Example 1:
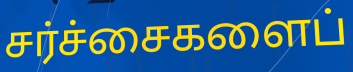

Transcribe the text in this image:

சர்ச்சைகளைப்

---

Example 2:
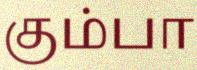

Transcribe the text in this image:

கும்பா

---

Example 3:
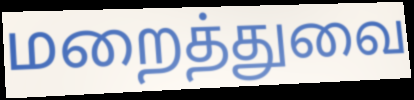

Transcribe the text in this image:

மறைத்துவை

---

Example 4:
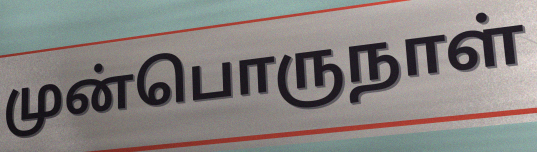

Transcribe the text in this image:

முன்பொருநாள்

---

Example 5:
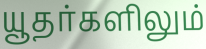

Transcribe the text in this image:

யூதர்களிலும்